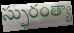
స్ఫురంత్యా